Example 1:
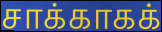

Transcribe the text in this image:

சாக்காகக்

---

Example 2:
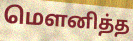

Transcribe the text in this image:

மௌனித்த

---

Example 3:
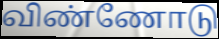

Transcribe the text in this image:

விண்ணோடு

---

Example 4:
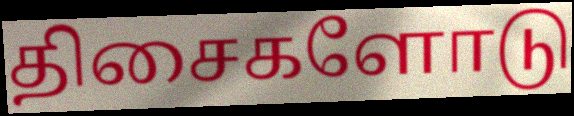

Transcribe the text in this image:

திசைகளோடு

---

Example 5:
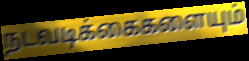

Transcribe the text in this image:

நடவடிக்கைகளையும்